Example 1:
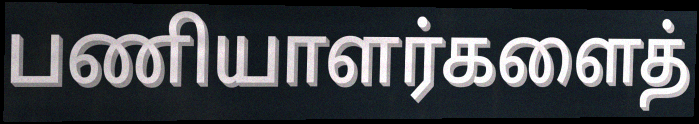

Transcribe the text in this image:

பணியாளர்களைத்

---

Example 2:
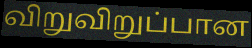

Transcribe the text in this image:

விறுவிறுப்பான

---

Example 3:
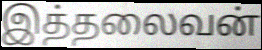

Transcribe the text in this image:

இத்தலைவன்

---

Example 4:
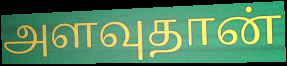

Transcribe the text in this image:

அளவுதான்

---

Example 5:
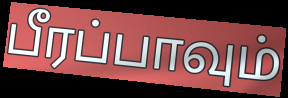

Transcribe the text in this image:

பீரப்பாவும்